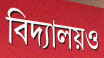
বিদ্যালয়ও